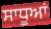
ਸਾਧੂਆਂ